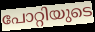
പോറ്റിയുടെ